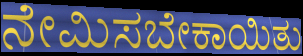
ನೇಮಿಸಬೇಕಾಯಿತು